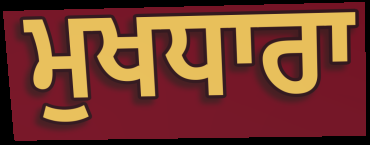
ਮੁਖਧਾਰਾ